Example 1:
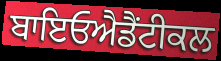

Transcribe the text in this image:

ਬਾਇਓਐਡੈਂਟੀਕਲ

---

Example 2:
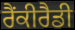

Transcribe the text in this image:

ਰੈਂਕੀਰੈਡੀ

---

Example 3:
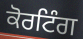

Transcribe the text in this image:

ਕੋਰਟਿੰਗ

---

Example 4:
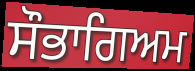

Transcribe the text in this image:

ਸੌਭਾਗਿਅਮ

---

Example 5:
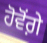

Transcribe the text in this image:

ਹੋਵੋਂਗ਼ੇ